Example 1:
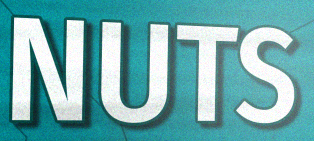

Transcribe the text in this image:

NUTS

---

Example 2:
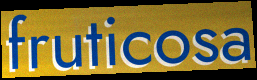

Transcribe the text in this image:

fruticosa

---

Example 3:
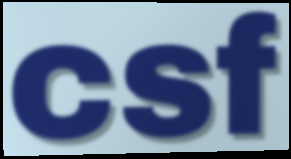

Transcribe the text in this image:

csf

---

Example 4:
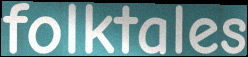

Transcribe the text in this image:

folktales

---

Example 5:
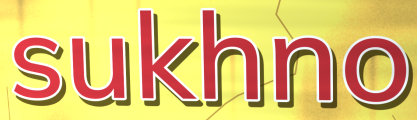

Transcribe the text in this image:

sukhno